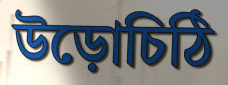
উড়োচিঠি